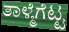
ತಾಳ್ಮೆಗೆಟ್ಟ